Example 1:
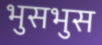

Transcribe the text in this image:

भुसभुस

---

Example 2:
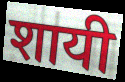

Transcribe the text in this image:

शायी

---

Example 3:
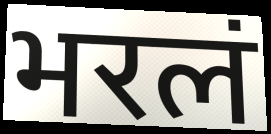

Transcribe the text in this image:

भरलं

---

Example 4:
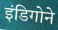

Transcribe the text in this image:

इंडिगोने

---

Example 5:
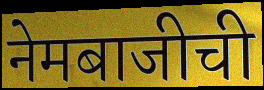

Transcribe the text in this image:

नेमबाजीची